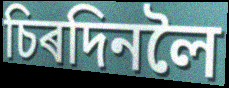
চিৰদিনলৈ